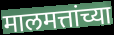
मालमत्तांच्या